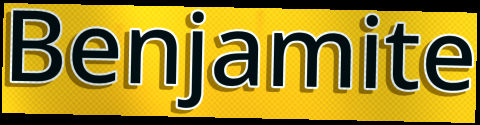
Benjamite